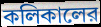
কলিকালের